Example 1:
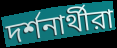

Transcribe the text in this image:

দর্শনার্থীরা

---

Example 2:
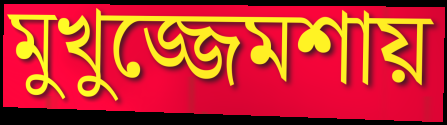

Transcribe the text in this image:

মুখুজ্জেমশায়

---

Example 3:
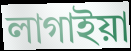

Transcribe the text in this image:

লাগাইয়া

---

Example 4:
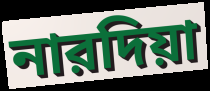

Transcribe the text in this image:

নারদিয়া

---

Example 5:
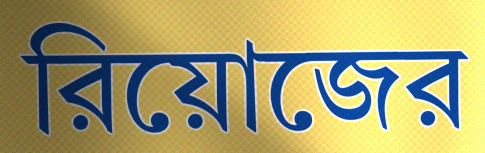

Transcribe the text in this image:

রিয়োজের